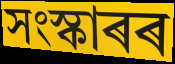
সংস্কাৰৰ